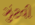
ઝુંટવી